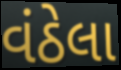
વંઠેલા